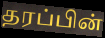
தரப்பின்